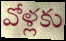
వోళ్లకు